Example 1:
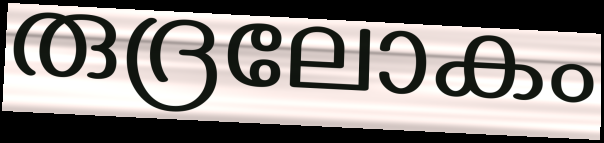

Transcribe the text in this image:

രുദ്രലോകം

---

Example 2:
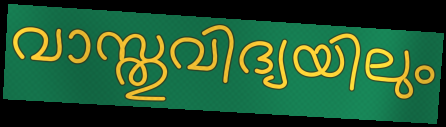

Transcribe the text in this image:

വാസ്തുവിദ്യയിലും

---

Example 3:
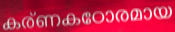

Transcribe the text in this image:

കര്ണകഠോരമായ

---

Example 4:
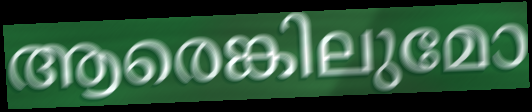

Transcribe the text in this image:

ആരെങ്കിലുമോ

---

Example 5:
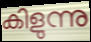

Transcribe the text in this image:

കിളുന്നു